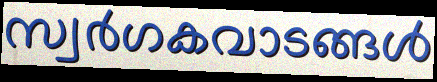
സ്വർഗകവാടങ്ങൾ